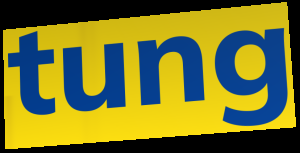
tung